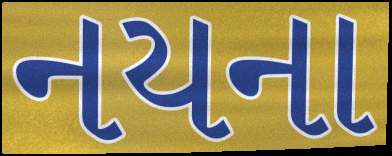
નયના